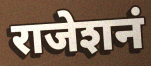
राजेशनं